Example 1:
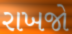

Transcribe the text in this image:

રાખજો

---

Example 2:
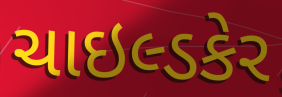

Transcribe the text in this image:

ચાઇલ્ડકેર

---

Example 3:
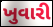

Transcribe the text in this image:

ખુવારી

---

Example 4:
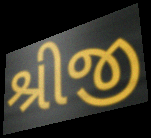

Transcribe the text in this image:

શ્રીજી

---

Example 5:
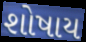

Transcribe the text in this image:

શોષાય